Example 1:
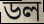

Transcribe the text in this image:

ডল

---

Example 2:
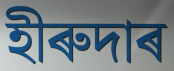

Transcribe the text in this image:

হীৰুদাৰ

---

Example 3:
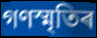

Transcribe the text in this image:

গণস্মৃতিৰ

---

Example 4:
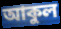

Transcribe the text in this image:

আকুল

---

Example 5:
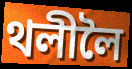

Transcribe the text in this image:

থলীলৈ